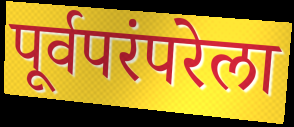
पूर्वपरंपरेला